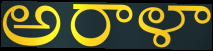
అరాళా